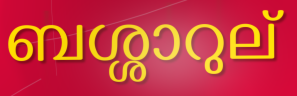
ബശ്ശാറുല്